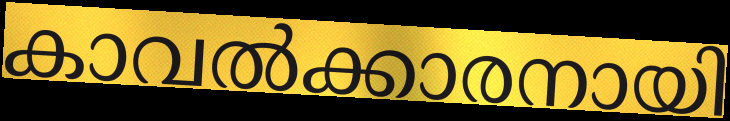
കാവൽക്കാരനായി